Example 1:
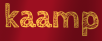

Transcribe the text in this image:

kaamp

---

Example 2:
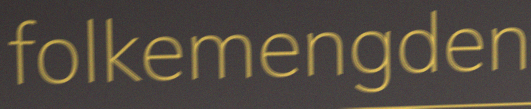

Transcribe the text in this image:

folkemengden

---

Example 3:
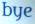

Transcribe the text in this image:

bye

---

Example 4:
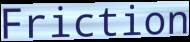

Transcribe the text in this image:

Friction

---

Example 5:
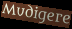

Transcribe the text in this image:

Mudigere